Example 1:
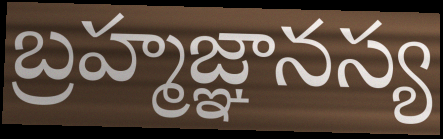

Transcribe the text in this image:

బ్రహ్మజ్ఞానస్య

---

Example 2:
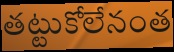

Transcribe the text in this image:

తట్టుకోలేనంత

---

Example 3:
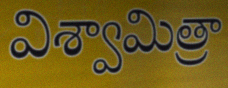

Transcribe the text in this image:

విశ్వామిత్రా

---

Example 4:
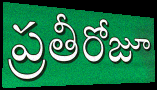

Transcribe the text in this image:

ప్రతీరోజూ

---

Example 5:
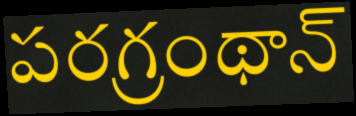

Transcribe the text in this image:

పరగ్రంథాన్